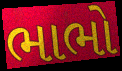
ભાભો